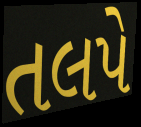
તલપે